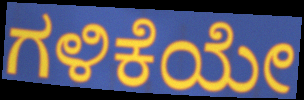
ಗಳಿಕೆಯೇ